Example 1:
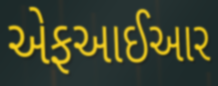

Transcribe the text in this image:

એફઆઈઆર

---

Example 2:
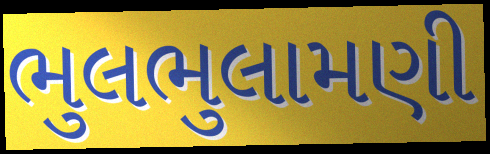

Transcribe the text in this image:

ભુલભુલામણી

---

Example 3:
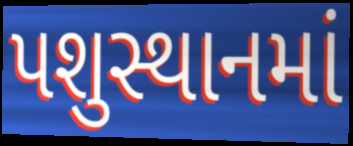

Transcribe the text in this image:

પશુસ્થાનમાં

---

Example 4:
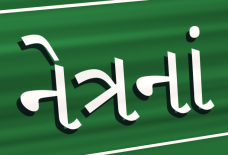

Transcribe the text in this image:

નેત્રનાં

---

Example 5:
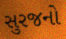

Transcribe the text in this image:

સુરજનો